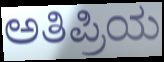
ಅತಿಪ್ರಿಯ